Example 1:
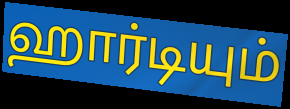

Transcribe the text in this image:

ஹார்டியும்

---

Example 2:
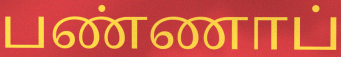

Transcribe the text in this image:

பண்ணாப்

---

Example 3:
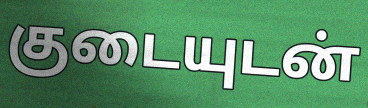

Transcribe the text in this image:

குடையுடன்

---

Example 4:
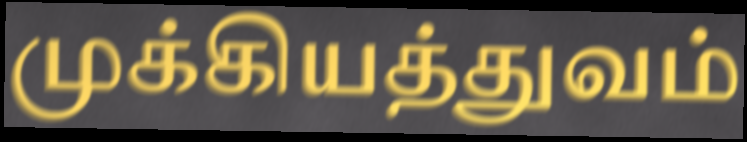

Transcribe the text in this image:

முக்கியத்துவம்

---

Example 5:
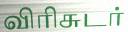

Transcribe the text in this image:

விரிசுடர்